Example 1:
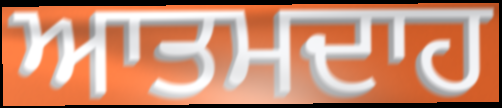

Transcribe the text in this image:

ਆਤਮਦਾਹ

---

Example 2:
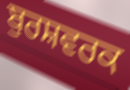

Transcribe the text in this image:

ਬੁਰਸ਼ਵਰਕ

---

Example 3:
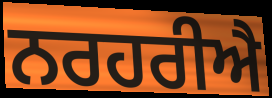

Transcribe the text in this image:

ਨਰਹਰੀਐ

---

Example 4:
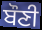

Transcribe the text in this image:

ਬੌਣੀ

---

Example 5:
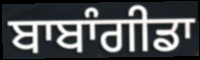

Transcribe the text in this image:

ਬਾਬਾੰਗੀਡਾ